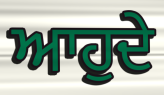
ਆਹੁਦੇ